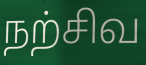
நற்சிவ